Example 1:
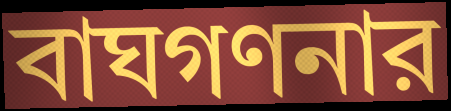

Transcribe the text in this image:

বাঘগণনার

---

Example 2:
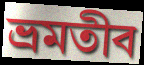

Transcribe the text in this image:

ভ্রমতীব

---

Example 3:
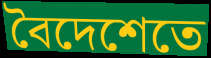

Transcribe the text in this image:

বৈদেশেতে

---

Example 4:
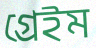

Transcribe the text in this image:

গ্রেইম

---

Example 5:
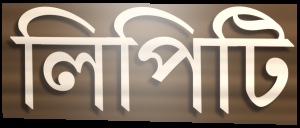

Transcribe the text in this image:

লিপিটি